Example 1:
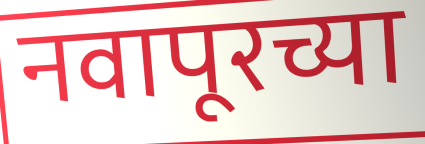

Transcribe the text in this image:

नवापूरच्या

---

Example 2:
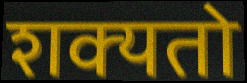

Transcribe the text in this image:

शक्‍यतो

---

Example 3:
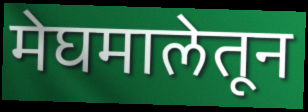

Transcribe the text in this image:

मेघमालेतून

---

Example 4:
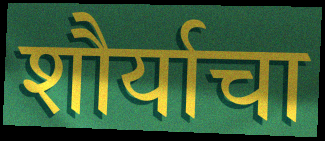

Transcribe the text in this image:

शौर्याचा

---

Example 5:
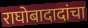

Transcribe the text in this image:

राघोबादादांचा